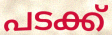
പടക്ക്